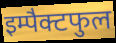
इम्पैक्टफुल